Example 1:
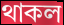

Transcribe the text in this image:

থাকল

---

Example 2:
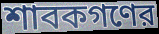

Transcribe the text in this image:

শাবকগণের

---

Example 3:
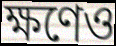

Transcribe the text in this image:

ক্ষণেও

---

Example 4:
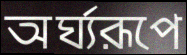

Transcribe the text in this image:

অর্ঘ্যরূপে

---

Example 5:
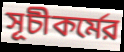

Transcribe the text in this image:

সূচীকর্মের